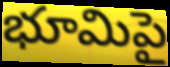
భూమిపై